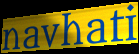
navhati